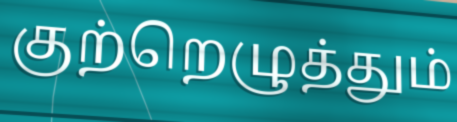
குற்றெழுத்தும்